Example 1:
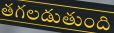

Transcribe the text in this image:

తగలడుతుంది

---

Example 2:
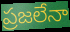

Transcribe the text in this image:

ప్రజలేనా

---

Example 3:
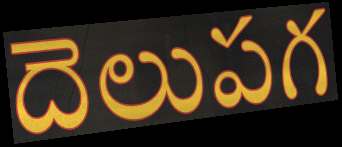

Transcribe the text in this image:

దెలుపగ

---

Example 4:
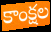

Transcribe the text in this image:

కాంక్షల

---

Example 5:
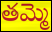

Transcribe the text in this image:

తమ్మె